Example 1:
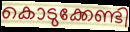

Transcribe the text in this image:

കൊടുക്കേണ്ടി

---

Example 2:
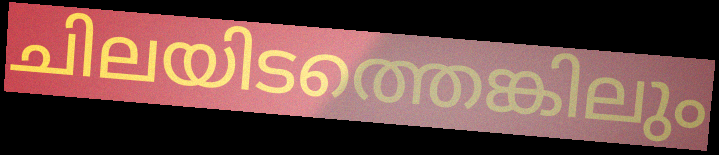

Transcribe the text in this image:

ചിലയിടത്തെങ്കിലും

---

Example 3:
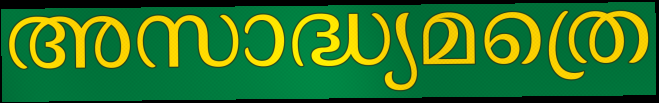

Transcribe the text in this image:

അസാദ്ധ്യമത്രെ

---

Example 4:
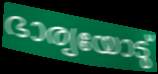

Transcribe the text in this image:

ഭാര്യയോടു്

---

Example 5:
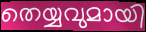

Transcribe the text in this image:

തെയ്യവുമായി